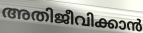
അതിജീവിക്കാൻ